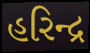
હરિન્દ્ર